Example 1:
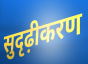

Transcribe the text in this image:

सुदृढ़ीकरण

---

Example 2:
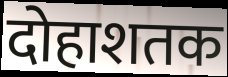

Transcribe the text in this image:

दोहाशतक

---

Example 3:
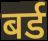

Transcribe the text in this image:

बर्ड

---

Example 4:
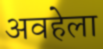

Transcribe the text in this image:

अवहेला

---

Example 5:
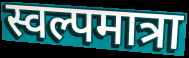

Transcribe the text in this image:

स्वल्पमात्रा